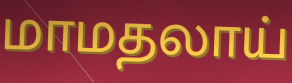
மாமதலாய்